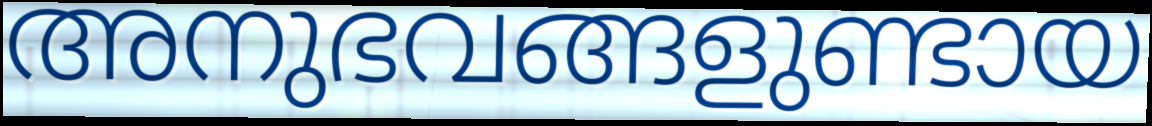
അനുഭവങ്ങളുണ്ടായ